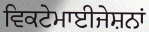
ਵਿਕਟੇਮਾਈਜੇਸ਼ਨਾਂ